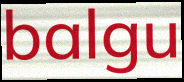
balgu